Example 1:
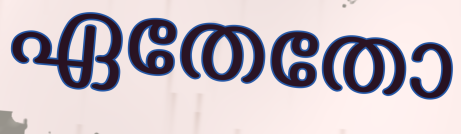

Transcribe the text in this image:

ഏതേതോ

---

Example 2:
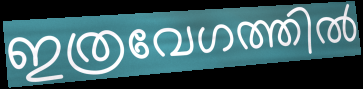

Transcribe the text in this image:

ഇത്രവേഗത്തിൽ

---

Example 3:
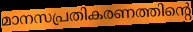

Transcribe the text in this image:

മാനസപ്രതികരണത്തിന്റെ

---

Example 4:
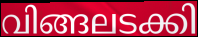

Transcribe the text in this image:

വിങ്ങലടക്കി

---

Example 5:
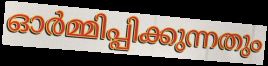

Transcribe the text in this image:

ഓർമ്മിപ്പിക്കുന്നതും